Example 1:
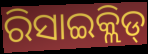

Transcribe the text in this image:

ରିସାଇକ୍ଲିଡ୍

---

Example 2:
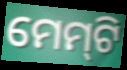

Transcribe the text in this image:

ମେମ୍‍ଟି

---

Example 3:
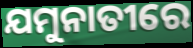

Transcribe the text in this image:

ଯମୁନାତୀରେ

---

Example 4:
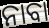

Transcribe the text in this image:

ନାବା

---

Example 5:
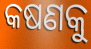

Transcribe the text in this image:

କଷଣକୁ